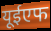
यूईएफ